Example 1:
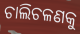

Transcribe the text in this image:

ଚାଲିଚଳଣକୁ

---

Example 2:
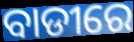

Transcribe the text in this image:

ବାଡୀରେ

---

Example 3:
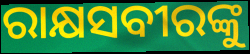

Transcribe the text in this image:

ରାକ୍ଷସବୀରଙ୍କୁ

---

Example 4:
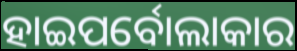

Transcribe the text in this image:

ହାଇପର୍ବୋଲାକାର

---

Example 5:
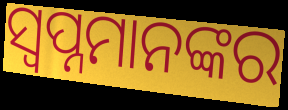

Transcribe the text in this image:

ସ୍ବପ୍ନମାନଙ୍କର